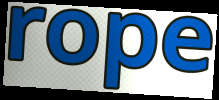
rope